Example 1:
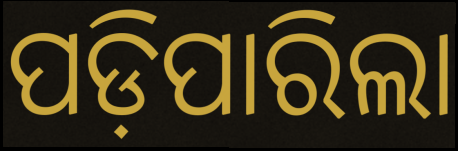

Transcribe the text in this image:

ପଡ଼ିପାରିଲା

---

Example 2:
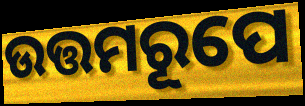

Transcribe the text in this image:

ଉତ୍ତମରୂପେ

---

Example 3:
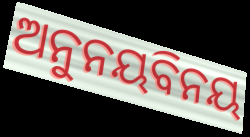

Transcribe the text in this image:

ଅନୁନୟବିନୟ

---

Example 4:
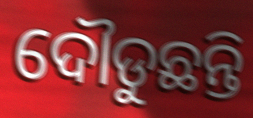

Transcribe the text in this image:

ଦୌଡୁଛନ୍ତି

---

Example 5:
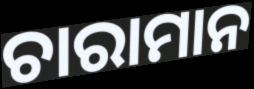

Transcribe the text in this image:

ଚାରାମାନ